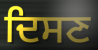
ਦਿਸਣ